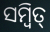
ସମ୍ବିତ୍